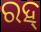
ରହ୍